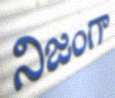
నిజంగా